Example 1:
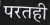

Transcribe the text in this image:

परतही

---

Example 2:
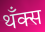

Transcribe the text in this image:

थँक्स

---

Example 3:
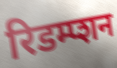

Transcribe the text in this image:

रिडम्प्शन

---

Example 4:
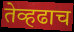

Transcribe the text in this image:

तेव्हढाच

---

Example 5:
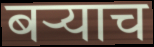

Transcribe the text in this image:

बर्‍याच